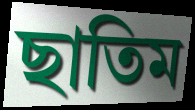
ছাতিম